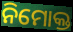
ନିମୋକ୍ତ